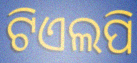
ଟିଏଲପି